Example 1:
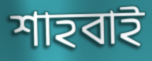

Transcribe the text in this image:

শাহবাই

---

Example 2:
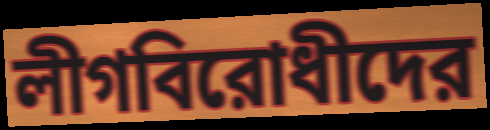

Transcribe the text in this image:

লীগবিরোধীদের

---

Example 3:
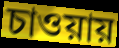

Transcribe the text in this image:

চাওয়ায়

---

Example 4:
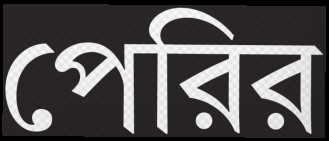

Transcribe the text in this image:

পেরির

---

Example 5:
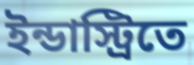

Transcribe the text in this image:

ইন্ডাস্ট্রিতে